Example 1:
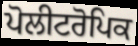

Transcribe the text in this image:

ਪੋਲੀਟਰੋਪਿਕ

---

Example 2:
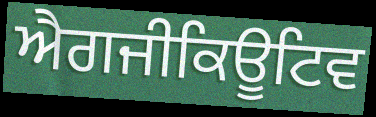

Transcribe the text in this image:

ਐਗਜੀਕਿਊਟਿਵ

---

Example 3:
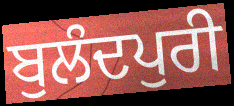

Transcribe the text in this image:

ਬੁਲੰਦਪੁਰੀ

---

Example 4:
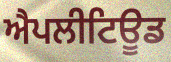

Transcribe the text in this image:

ਐਪਲੀਟਿਊਡ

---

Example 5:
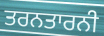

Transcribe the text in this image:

ਤਰਨਤਾਰਨੀ